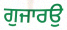
ਗੁਜਾਰਉ